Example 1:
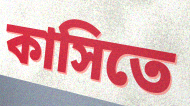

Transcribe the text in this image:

কাসিতে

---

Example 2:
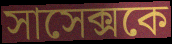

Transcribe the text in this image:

সাসেক্সকে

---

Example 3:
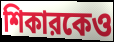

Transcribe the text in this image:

শিকারকেও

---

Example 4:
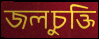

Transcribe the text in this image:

জলচুক্তি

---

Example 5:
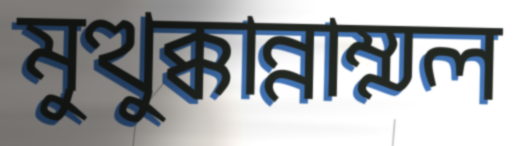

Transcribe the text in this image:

মুত্থুক্কান্নাম্মল